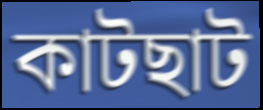
কাটছাট